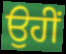
ਉਹੀਂ